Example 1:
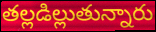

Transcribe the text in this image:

తల్లడిల్లుతున్నారు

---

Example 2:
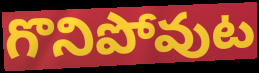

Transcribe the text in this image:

గొనిపోవుట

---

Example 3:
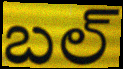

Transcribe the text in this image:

బల్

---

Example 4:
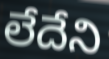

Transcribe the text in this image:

లేదేని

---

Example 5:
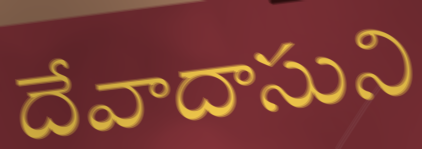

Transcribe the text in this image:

దేవాదాసుని